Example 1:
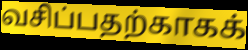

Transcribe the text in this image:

வசிப்பதற்காகக்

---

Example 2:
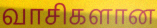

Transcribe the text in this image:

வாசிகளான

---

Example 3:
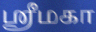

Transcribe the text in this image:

ஸ்ரீமகா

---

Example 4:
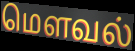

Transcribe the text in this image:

மௌவல்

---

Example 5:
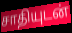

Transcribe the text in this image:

சாதியுடன்